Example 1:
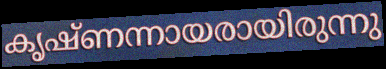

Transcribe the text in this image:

കൃഷ്ണന്നായരായിരുന്നു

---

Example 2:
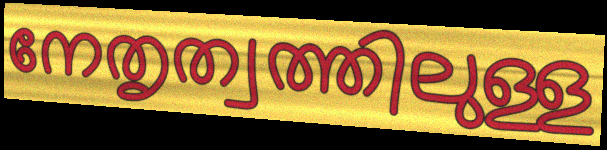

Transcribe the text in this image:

നേതൃത്വത്തിലുള്ള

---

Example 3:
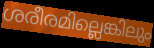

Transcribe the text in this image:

ശരീരമില്ലെങ്കിലും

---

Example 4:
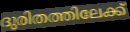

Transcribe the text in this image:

ദുരിതത്തിലേക്ക്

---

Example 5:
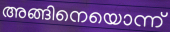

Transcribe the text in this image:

അങ്ങിനെയൊന്ന്